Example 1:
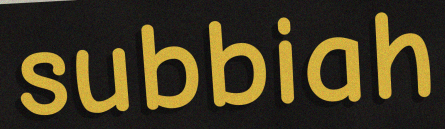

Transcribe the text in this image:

subbiah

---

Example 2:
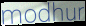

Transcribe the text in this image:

modhur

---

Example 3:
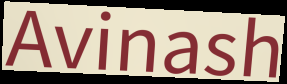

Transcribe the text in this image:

Avinash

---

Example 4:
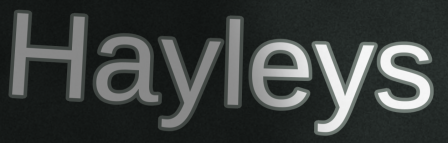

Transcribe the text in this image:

Hayleys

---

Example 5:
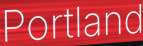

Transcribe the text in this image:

Portland